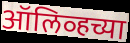
ऑलिव्हच्या